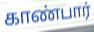
காண்பார்